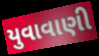
યુવાવાણી